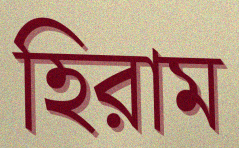
হিরাম